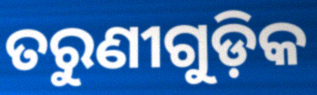
ତରୁଣୀଗୁଡ଼ିକ